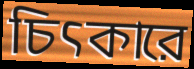
চিৎকারে